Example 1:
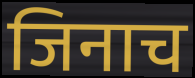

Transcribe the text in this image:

जिनाच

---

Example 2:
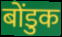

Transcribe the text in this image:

बोंडुक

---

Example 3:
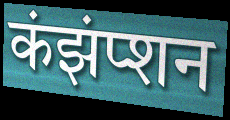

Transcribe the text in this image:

कंझंप्शन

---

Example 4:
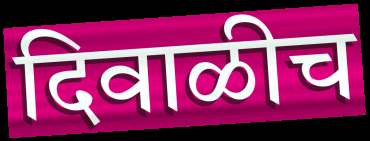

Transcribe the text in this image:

दिवाळीच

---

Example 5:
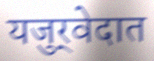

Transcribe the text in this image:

यजुर्वेदात